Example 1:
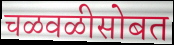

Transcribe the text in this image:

चळवळीसोबत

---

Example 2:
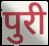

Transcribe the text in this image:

पुरी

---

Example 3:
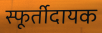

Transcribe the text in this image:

स्फूर्तीदायक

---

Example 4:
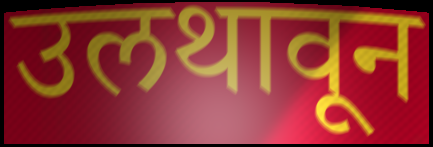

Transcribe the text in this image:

उलथावून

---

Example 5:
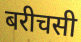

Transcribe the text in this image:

बरीचसी